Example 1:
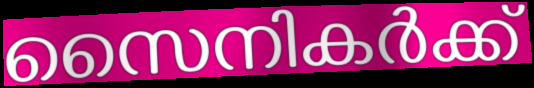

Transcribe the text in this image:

സൈനികർക്ക്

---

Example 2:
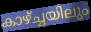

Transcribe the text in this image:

കാഴ്ച്ചയിലും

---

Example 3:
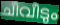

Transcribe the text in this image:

ചീവീടും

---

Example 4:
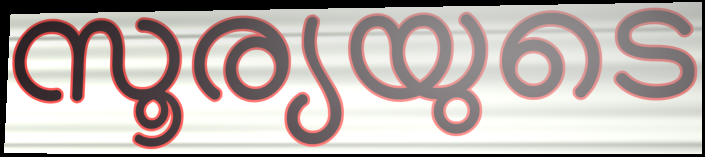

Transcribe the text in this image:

സൂര്യയുടെ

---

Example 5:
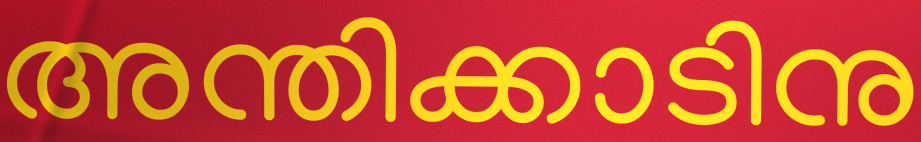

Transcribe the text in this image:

അന്തിക്കാടിനു